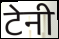
टेनी